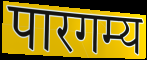
पारगम्य